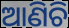
ଆଣିଚି